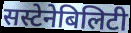
सस्टेनेबिलिटी